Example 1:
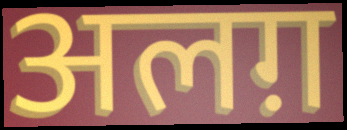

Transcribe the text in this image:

अलग़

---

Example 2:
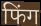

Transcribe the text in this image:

फिंग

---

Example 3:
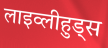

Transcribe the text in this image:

लाइव्लीहुड्स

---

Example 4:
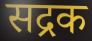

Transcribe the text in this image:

सद्रक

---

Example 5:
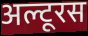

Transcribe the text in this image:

अल्टूरस